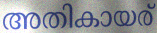
അതികായര്